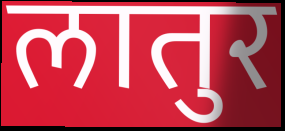
लातुर